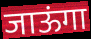
जाऊंगा